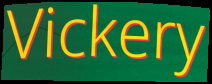
Vickery